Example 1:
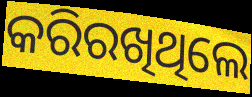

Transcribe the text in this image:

କରିରଖିଥିଲେ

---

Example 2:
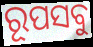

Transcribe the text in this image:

ରୂପସବୁ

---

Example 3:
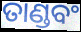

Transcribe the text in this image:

ତାଣ୍ଡବଂ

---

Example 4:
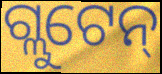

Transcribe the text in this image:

ଗ୍ଲୁଟେନ୍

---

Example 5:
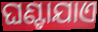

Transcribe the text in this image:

ଘଣ୍ଟାଯାଏ